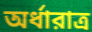
অর্ধারাত্র